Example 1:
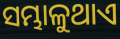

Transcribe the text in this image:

ସମ୍ଭାଳୁଥାଏ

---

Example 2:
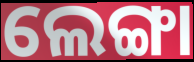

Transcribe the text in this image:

ଲେଙ୍ଗା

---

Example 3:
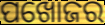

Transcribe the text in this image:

ପଖୋଜର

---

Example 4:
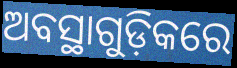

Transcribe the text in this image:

ଅବସ୍ଥାଗୁଡ଼ିକରେ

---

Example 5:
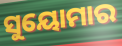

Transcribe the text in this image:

ସୁୟୋମାର